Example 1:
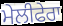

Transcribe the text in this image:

ਮੇਲੀਫੇਰਾ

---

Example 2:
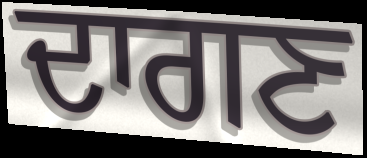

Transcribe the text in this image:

ਦਾਗਣ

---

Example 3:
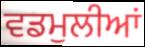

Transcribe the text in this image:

ਵਡਮੁਲੀਆਂ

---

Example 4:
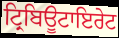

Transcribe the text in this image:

ਟ੍ਰਿਬਿਊਟਾਇਰੇਟ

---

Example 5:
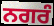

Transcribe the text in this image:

ਨਗਰੰ